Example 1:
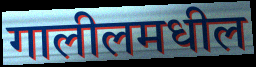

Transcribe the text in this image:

गालीलमधील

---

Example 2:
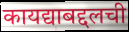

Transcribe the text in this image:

कायद्याबद्दलची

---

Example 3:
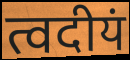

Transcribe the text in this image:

त्वदीयं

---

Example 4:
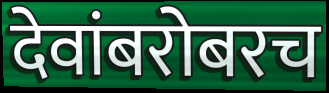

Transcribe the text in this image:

देवांबरोबरच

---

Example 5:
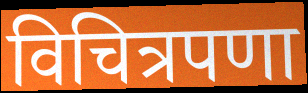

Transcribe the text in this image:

विचित्रपणा